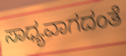
ಸಾಧ್ಯವಾಗದಂತೆ